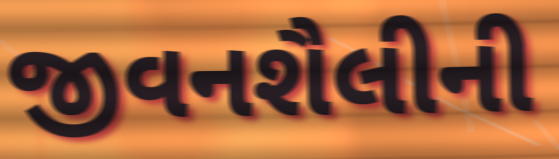
જીવનશૈલીની